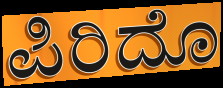
ಪಿರಿದೊ